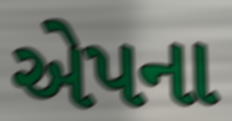
એપના